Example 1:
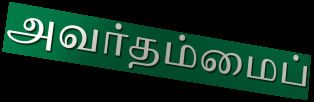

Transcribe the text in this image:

அவர்தம்மைப்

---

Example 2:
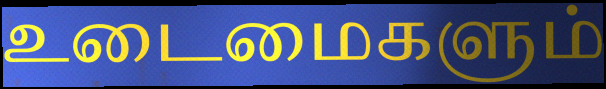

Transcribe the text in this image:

உடைமைகளும்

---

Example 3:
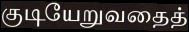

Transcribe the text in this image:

குடியேறுவதைத்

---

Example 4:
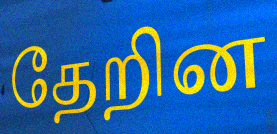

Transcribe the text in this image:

தேறின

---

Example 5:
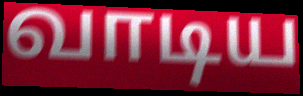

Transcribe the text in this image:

வாடிய